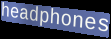
headphones